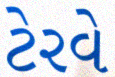
ટેરવે